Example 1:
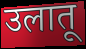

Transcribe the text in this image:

उलातू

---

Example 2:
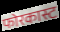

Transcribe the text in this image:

फोरकास्ट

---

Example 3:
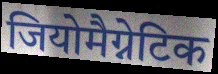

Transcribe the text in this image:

जियोमैग्नेटिक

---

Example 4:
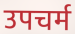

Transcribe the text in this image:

उपचर्म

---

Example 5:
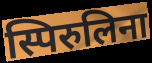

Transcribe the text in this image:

स्पिरुलिना